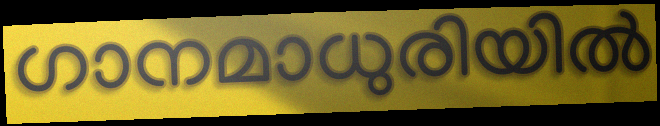
ഗാനമാധുരിയിൽ